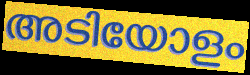
അടിയോളം